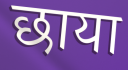
छाया